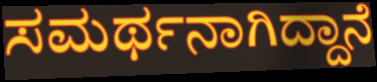
ಸಮರ್ಥನಾಗಿದ್ದಾನೆ